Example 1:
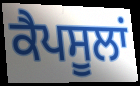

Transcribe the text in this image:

ਕੈਪਸੂਲਾਂ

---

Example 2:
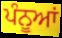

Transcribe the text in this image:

ਪੰਨੂਆਂ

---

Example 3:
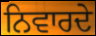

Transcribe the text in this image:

ਨਿਵਾਰਦੇ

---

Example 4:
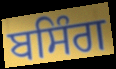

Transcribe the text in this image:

ਬਸਿੰਗ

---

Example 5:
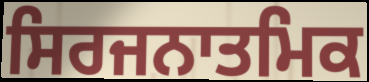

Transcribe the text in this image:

ਸਿਰਜਨਾਤਮਿਕ